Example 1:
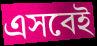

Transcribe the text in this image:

এসবেই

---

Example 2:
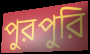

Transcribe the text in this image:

পুরপুরি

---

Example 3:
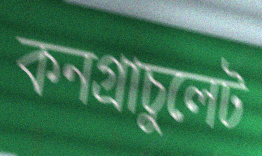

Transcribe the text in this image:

কনগ্রাচুলেট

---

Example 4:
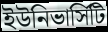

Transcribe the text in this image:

ইউনিভার্সিটি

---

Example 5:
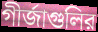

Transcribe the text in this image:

গীর্জাগুলির